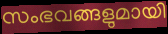
സംഭവങ്ങളുമായി